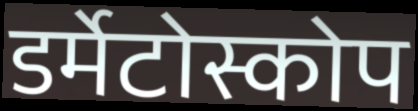
डर्मेटोस्कोप